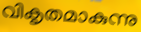
വികൃതമാകുന്നു